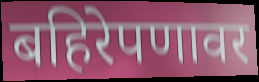
बहिरेपणावर